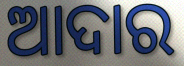
ଆଦାର